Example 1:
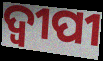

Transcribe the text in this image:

ଦ୍ୱୀପୀ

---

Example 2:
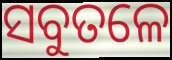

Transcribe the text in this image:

ସବୁତଳେ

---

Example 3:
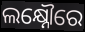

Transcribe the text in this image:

ଲକ୍ଷ୍ନୌରେ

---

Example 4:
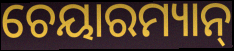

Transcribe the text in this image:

ଚେୟାରମ୍ୟାନ୍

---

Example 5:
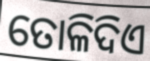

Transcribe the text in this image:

ତୋଳିଦିଏ